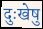
दुःखेषु